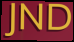
JND